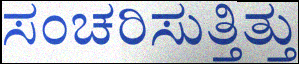
ಸಂಚರಿಸುತ್ತಿತ್ತು